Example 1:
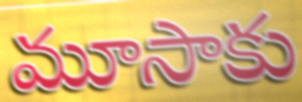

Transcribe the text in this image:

మూసాకు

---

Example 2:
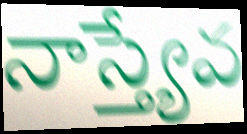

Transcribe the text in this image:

నాస్త్యేవ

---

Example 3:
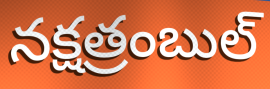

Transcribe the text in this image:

నక్షత్రంబుల్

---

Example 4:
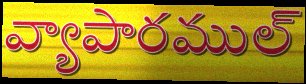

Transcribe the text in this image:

వ్యాపారముల్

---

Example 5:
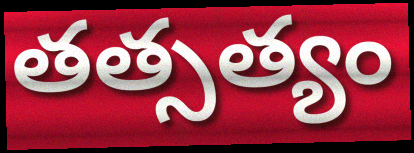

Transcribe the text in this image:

తత్సత్యం